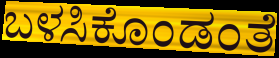
ಬಳಸಿಕೊಂಡಂತೆ